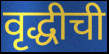
वृद्धीची